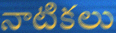
నాటికలు